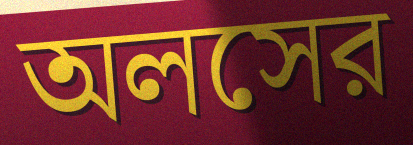
অলসের